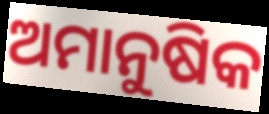
ଅମାନୁଷିକ